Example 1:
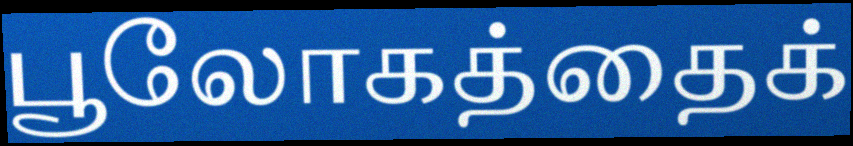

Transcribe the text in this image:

பூலோகத்தைக்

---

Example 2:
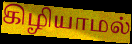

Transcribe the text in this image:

கிழியாமல்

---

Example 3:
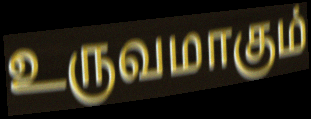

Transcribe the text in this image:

உருவமாகும்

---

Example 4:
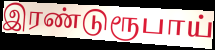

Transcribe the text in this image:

இரண்டுரூபாய்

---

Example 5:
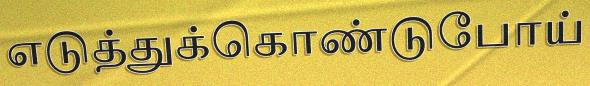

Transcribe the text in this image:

எடுத்துக்கொண்டுபோய்